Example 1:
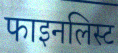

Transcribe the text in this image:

फाइनलिस्ट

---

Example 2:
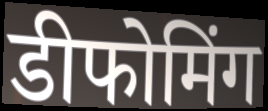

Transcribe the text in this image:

डीफोमिंग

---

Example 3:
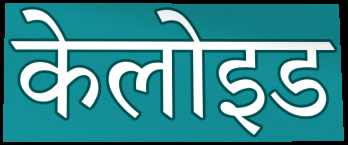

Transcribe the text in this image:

केलोइड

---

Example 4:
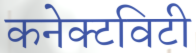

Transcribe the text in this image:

कनेक्टविटी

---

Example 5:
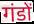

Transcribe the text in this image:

गंडों